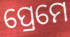
ପ୍ରେମେ